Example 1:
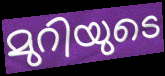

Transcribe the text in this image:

മുറിയുടെ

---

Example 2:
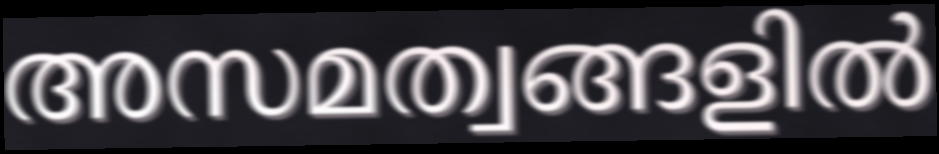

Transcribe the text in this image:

അസമത്വങ്ങളിൽ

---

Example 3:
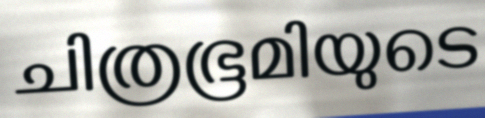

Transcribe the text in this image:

ചിത്രഭൂമിയുടെ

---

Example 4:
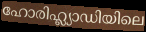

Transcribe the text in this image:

ഹോരിഹ്ല്യാഡിയിലെ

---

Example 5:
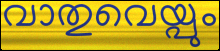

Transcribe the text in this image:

വാതുവെയ്പും